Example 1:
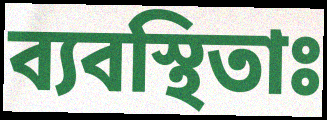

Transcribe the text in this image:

ব্যবস্থিতাঃ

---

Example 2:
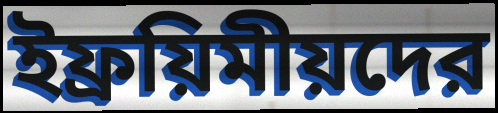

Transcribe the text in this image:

ইফ্রয়িমীয়দের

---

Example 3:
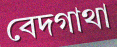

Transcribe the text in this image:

বেদগাথা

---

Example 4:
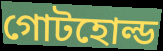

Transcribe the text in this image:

গোটহোল্ড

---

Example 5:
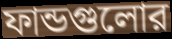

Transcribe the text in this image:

ফান্ডগুলোর